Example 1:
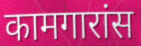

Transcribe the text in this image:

कामगारांस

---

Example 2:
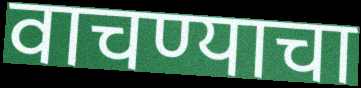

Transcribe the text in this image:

वाचण्याचा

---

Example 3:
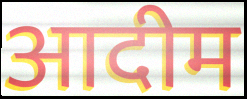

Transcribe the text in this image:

आदीम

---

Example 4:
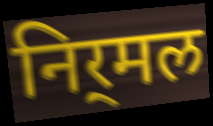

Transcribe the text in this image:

निर्मल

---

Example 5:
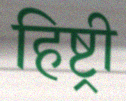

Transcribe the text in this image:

हिष्ट्री